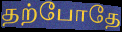
தற்போதே